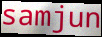
samjun